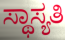
ಸ್ಥಾಸ್ಯತಿ